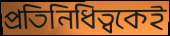
প্রতিনিধিত্বকেই